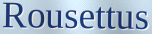
Rousettus